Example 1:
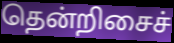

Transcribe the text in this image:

தென்றிசைச்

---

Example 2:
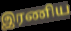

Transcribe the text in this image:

இரணிய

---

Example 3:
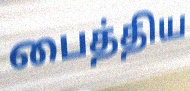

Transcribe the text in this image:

பைத்திய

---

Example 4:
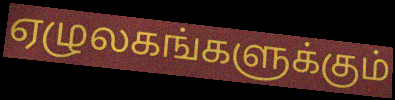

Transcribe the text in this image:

ஏழுலகங்களுக்கும்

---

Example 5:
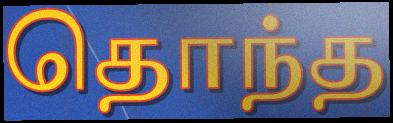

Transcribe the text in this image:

தொந்த